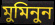
মুমিনুন